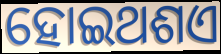
ହୋଇଥଶଏ